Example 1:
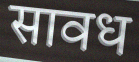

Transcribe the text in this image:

सावध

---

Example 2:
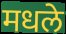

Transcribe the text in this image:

मधले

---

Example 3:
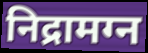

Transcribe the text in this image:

निद्रामग्न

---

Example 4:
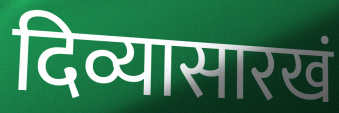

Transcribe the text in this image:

दिव्यासारखं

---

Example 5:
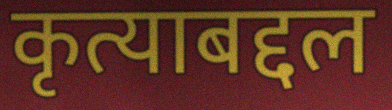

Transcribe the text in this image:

कृत्याबद्दल